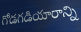
గోడగడియారాన్ని